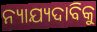
ନ୍ୟାଯ୍ୟଦାବିକୁ